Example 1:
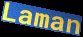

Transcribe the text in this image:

Laman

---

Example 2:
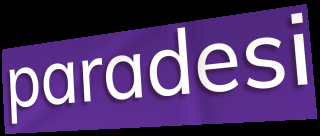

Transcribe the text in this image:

paradesi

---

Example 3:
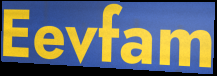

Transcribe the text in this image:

Eevfam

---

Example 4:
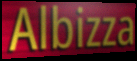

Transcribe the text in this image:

Albizza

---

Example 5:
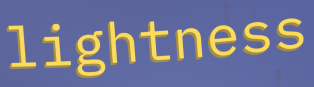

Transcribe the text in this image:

lightness